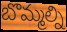
బొమ్మల్ని